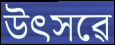
উৎসৱে